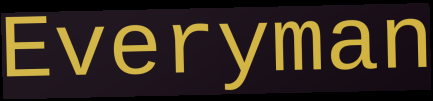
Everyman